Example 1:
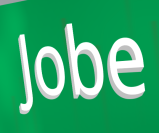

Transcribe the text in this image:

Jobe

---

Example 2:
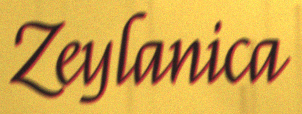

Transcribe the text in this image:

Zeylanica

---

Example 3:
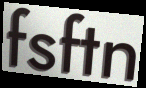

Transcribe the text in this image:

fsftn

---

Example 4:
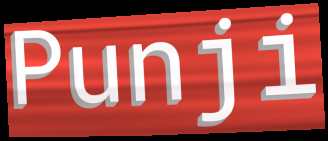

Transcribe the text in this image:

Punji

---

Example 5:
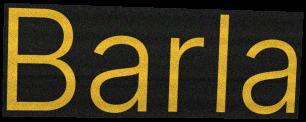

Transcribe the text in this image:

Barla